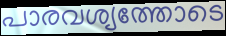
പാരവശ്യത്തോടെ